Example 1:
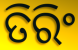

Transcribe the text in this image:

ତିରିଂ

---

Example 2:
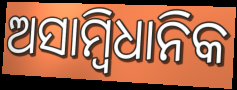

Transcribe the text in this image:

ଅସାମ୍ୱିଧାନିକ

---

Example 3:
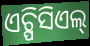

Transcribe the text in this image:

ଏଚ୍ପିସିଏଲ୍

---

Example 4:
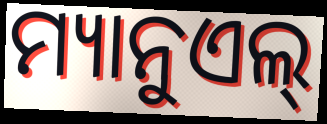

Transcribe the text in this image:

ମ୍ୟାନୁଏଲ୍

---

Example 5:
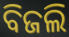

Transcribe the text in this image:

ବିଜଲି